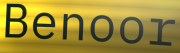
Benoor